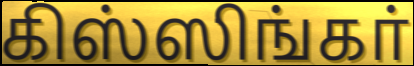
கிஸ்ஸிங்கர்